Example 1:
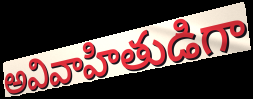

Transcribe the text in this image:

అవివాహితుడిగా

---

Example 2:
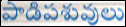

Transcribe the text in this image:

పాడిపశువులు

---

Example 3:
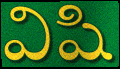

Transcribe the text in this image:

విషి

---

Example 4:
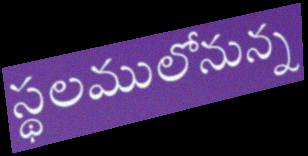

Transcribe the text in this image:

స్థలములోనున్న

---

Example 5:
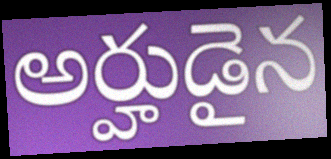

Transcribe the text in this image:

అర్హుడైన